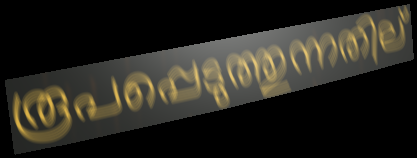
രൂപപ്പെടുത്തുന്നതില്